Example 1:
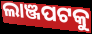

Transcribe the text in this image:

ଲାଞ୍ଜପଟକୁ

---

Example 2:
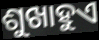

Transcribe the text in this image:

ଶୁଖାହୁଏ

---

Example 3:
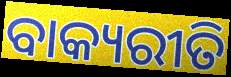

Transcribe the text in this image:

ବାକ୍ୟରୀତି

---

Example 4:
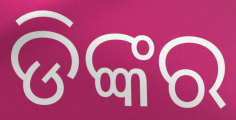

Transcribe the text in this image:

ଡିଙ୍କର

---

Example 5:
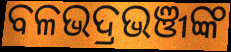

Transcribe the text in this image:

ବଳଭଦ୍ରଭଞ୍ଜଙ୍କ